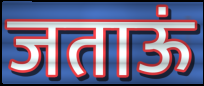
जताऊं